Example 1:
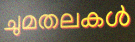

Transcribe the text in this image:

ചുമതലകൾ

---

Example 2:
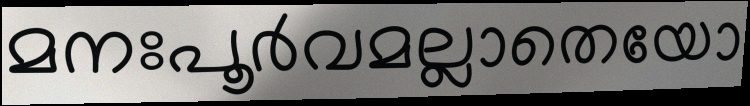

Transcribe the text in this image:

മനഃപൂർവമല്ലാതെയോ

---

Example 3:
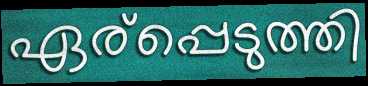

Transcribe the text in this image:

ഏര്പ്പെടുത്തി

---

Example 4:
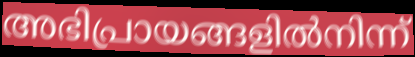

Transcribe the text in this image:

അഭിപ്രായങ്ങളിൽനിന്ന്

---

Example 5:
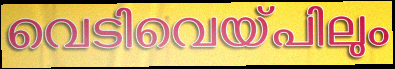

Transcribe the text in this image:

വെടിവെയ്പിലും